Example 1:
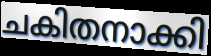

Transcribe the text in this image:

ചകിതനാക്കി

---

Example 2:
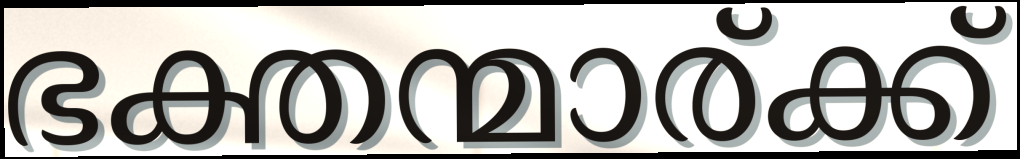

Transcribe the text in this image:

ഭക്തന്മാര്ക്ക്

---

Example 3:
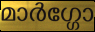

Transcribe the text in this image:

മാർഗ്ഗോ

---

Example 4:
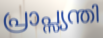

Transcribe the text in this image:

പ്രാപ്സ്യന്തി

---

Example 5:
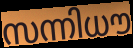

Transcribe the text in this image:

സന്നിധൗ